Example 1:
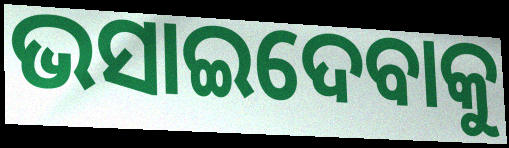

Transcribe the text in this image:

ଭସାଇଦେବାକୁ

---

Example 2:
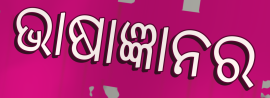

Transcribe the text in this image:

ଭାଷାଜ୍ଞାନର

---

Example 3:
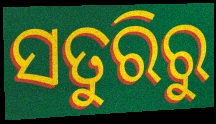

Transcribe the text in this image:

ସତୁରିରୁ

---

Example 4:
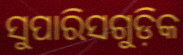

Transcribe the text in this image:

ସୁପାରିସଗୁଡ଼ିକ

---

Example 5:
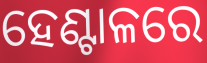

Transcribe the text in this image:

ହେଣ୍ଟାଳରେ